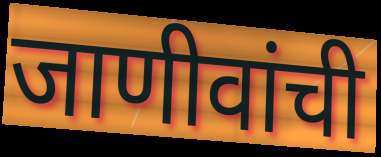
जाणीवांची